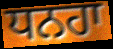
ਧਨਹਾ